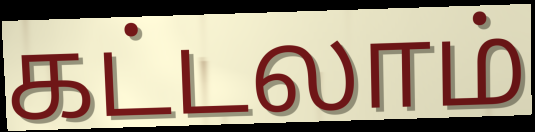
கட்டலாம்